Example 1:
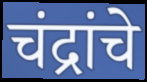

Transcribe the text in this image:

चंद्रांचे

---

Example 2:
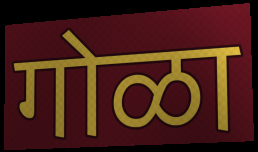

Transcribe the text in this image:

गोळा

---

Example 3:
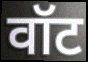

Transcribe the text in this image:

वॉट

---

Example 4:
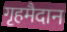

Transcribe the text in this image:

गृहमैदान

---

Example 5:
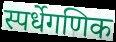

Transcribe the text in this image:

स्पर्धेगणिक